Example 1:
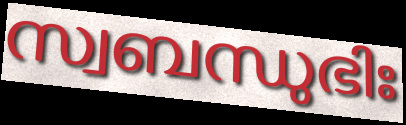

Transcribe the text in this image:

സ്വബന്ധുഭിഃ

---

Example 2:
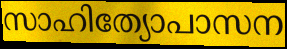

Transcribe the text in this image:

സാഹിത്യോപാസന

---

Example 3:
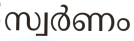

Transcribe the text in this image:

സ്വർണം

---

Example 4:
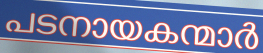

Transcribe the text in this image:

പടനായകന്മാർ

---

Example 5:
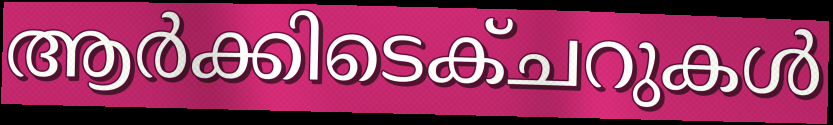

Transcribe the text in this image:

ആർക്കിടെക്ചറുകൾ